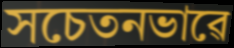
সচেতনভাৱে